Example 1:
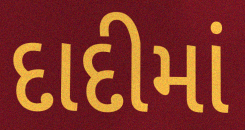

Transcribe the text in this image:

દાદીમાં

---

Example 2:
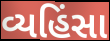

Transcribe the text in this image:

વ્યહિંસા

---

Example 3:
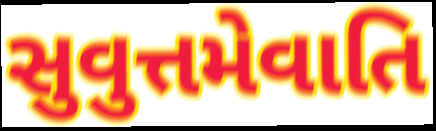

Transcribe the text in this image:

સુવુત્તમેવાતિ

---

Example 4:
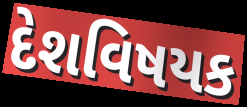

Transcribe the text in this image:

દેશવિષયક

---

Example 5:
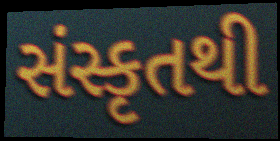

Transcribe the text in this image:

સંસ્કૃતથી